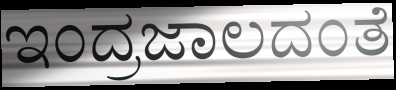
ಇಂದ್ರಜಾಲದಂತೆ